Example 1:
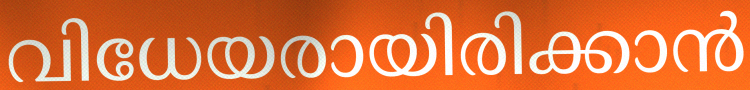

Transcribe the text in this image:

വിധേയരായിരിക്കാൻ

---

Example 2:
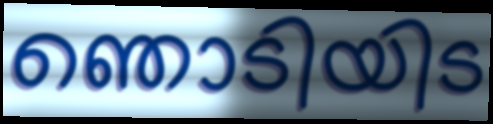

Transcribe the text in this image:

ഞൊടിയിട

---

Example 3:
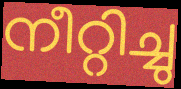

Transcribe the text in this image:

നീറ്റിച്ചു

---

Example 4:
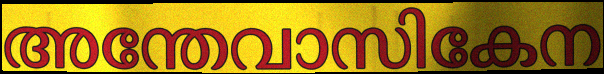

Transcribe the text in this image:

അന്തേവാസികേന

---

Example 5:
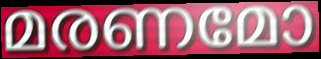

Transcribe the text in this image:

മരണമോ